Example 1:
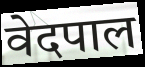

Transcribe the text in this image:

वेदपाल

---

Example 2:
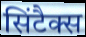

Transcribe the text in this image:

सिंटैक्स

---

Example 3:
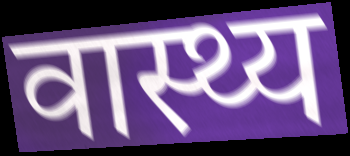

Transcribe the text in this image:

वास्थ्य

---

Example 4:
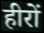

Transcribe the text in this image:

हीरों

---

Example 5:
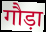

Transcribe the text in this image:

गौड़ा